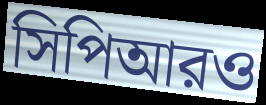
সিপিআরও